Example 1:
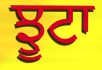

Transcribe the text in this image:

ਝੂਟਾ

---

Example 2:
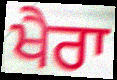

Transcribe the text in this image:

ਖੈਰਾ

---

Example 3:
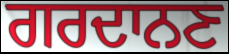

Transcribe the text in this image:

ਗਰਦਾਨਣ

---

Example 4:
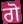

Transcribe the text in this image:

ਗੋ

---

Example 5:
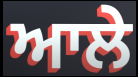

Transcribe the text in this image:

ਆਲੇ